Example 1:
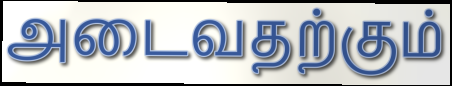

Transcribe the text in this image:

அடைவதற்கும்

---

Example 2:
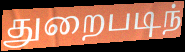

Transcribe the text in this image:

துறைபடிந்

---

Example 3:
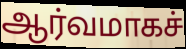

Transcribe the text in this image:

ஆர்வமாகச்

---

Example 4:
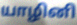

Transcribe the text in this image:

யாழினி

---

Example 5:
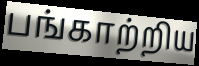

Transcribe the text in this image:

பங்காற்றிய